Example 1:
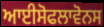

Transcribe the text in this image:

ਆਈਸੋਫਲਾਵੋਨਸ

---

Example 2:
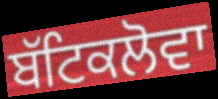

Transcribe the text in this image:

ਬੱਟਿਕਲੋਵਾ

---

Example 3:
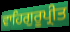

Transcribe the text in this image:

ਵਾਹਿਗੁਰੂਪ੍ਰੀਤ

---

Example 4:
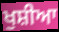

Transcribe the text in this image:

ਖੁਸ਼ੀਆ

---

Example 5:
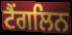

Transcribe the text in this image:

ਟੈਂਗਲਿਨ